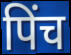
पिंच